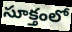
సూక్తంలో